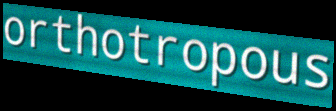
orthotropous